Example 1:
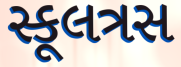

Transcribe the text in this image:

સ્કૂલત્રસ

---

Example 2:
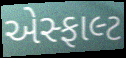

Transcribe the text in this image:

એસ્ફાલ્ટ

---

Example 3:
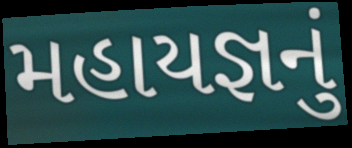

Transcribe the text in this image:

મહાયજ્ઞનું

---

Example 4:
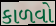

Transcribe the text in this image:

કાળવો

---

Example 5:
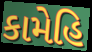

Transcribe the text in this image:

કામેહિ